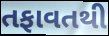
તફાવતથી